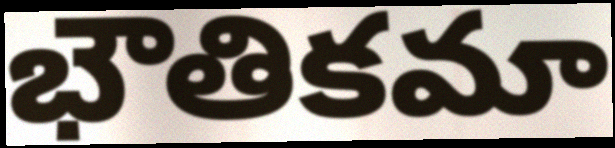
భౌతికమా